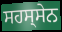
ਸਹਸ੍ਸੇਨ